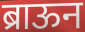
ब्राऊन